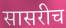
सासरीच